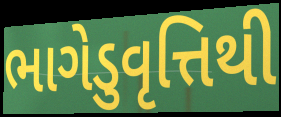
ભાગેડુવૃત્તિથી